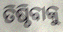
ତିଷ୍ଠିବାକୁ